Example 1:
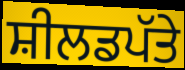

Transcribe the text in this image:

ਸ਼ੀਲਡਪੱਤੇ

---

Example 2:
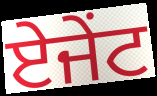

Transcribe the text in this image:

ਏਜੇਂਟ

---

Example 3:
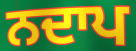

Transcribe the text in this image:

ਨਦਾਪ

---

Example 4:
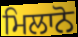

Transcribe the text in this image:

ਮਿਲਾਨੋ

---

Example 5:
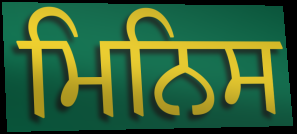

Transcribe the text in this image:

ਮਿਨਿਸ